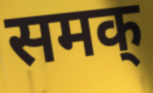
समक्